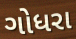
ગોધરા